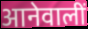
आनेवालीं